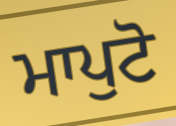
ਮਾਪੁਟੋ